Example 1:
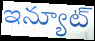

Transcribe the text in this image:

ఇన్యూట్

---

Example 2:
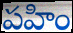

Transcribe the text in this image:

పహిం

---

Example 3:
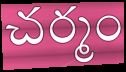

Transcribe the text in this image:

చర్మం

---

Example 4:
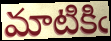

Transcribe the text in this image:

మాటికిఁ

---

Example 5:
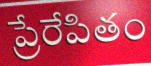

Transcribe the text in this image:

ప్రేరేపితం